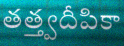
తత్త్వదీపికా